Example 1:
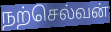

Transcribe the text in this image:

நற்செல்வன்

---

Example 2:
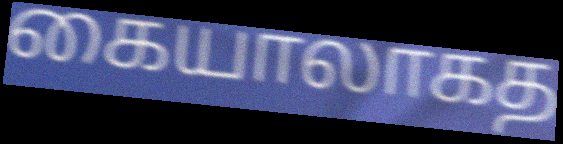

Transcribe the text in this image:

கையாலாகத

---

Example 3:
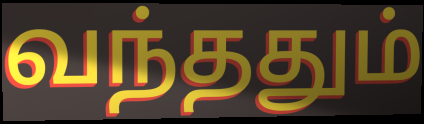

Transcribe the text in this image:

வந்ததும்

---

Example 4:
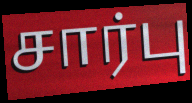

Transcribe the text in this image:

சார்பு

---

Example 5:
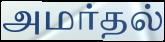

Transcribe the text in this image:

அமர்தல்